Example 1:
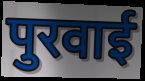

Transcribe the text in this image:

पुरवाई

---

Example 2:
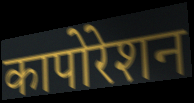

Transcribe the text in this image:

कापोरेशन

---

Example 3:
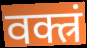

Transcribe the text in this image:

वक्त्रं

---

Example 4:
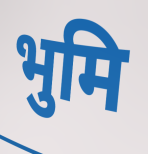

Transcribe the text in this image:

भुमि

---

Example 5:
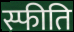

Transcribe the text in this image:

स्‍फीति